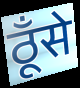
ठूँसे